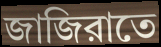
জাজিরাতে